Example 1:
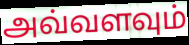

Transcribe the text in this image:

அவ்வளவும்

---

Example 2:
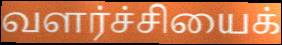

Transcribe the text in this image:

வளர்ச்சியைக்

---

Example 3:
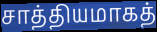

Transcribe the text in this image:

சாத்தியமாகத்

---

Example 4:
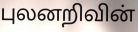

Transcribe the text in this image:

புலனறிவின்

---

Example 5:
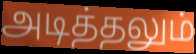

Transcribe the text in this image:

அடித்தலும்